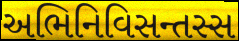
અભિનિવિસન્તસ્સ